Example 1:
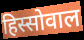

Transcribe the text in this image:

हिस्सोवाल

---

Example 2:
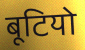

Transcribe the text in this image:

बूटियो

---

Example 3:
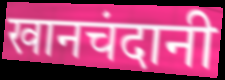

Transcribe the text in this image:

खानचंदानी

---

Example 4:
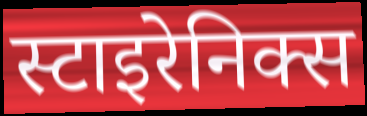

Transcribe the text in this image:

स्टाइरेनिक्स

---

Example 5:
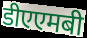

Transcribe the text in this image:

डीएएमबी